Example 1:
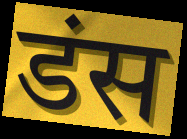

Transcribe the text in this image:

डंस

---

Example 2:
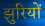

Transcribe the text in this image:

झुरियों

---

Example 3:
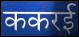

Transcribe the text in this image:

ककरई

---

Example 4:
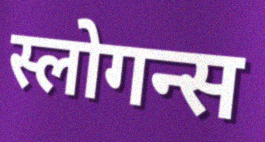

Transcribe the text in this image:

स्लोगन्स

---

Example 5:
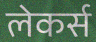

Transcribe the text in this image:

लेकर्स